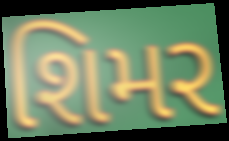
શિમર